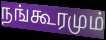
நங்கூரமும்